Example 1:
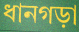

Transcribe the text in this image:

ধানগড়া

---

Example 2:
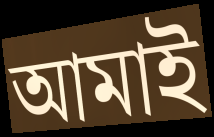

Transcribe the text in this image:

আমাই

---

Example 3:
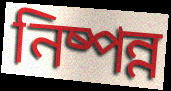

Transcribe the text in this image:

নিষ্পন্ন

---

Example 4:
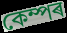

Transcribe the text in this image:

কেম্পৰ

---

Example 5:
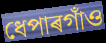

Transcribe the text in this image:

ধেপাৰগাঁও